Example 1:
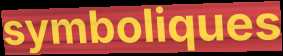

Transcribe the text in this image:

symboliques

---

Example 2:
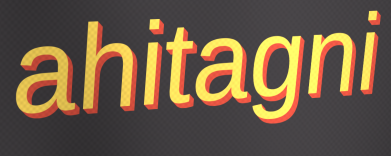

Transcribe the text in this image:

ahitagni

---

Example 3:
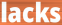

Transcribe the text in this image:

lacks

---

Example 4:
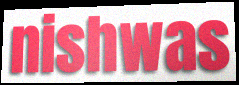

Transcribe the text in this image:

nishwas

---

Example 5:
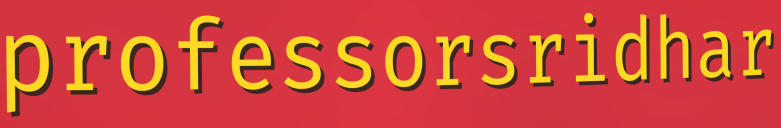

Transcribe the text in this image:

professorsridhar